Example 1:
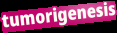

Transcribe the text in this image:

tumorigenesis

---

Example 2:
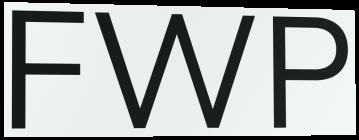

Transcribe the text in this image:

FWP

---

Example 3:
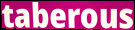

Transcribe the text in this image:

taberous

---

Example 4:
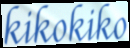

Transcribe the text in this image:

kikokiko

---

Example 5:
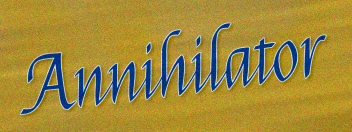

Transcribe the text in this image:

Annihilator